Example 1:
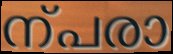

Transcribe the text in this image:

ന്പരാ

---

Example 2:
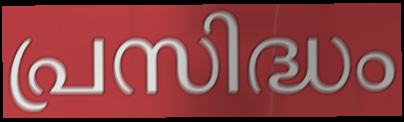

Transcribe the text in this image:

പ്രസിദ്ധം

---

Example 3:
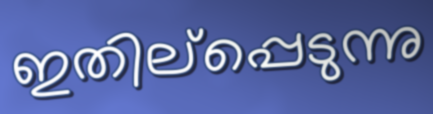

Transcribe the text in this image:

ഇതില്പ്പെടുന്നു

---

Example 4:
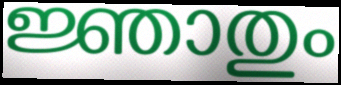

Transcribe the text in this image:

ജ്ഞാതും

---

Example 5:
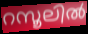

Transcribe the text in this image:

റസൂലിൽ